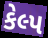
કેલ્પ